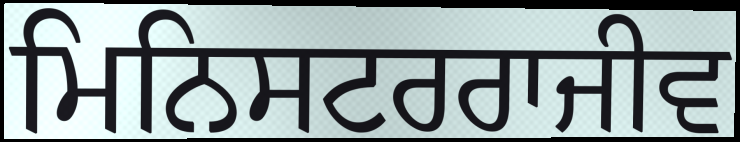
ਮਿਨਿਸਟਰਰਾਜੀਵ